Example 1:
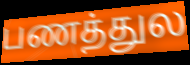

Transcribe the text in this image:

பணத்துல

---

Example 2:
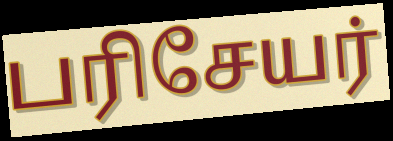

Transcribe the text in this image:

பரிசேயர்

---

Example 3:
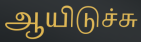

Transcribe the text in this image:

ஆயிடுச்சு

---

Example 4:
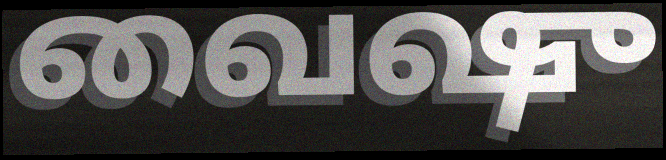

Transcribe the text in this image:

வைஷு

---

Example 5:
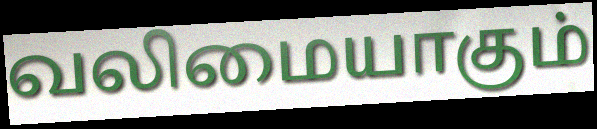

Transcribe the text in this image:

வலிமையாகும்